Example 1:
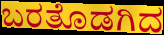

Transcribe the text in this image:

ಬರತೊಡಗಿದ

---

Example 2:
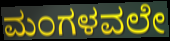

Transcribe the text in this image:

ಮಂಗಳವಲೇ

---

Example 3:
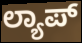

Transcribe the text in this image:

ಲ್ಯಾಪ್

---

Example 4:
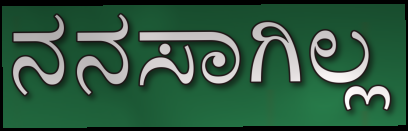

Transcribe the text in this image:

ನನಸಾಗಿಲ್ಲ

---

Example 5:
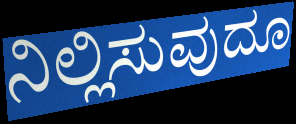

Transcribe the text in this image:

ನಿಲ್ಲಿಸುವುದೂ